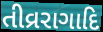
તીવ્રરાગાદિ